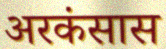
अरकंसास